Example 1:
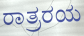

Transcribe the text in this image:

ರಾತ್ರರಯ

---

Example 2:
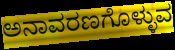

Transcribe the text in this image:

ಅನಾವರಣಗೊಳ್ಳುವ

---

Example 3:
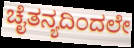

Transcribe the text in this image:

ಚೈತನ್ಯದಿಂದಲೇ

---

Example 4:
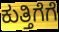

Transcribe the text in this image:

ಕುತ್ತಿಗೆಗೆ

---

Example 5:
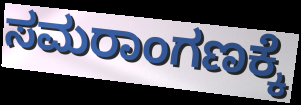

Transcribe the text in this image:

ಸಮರಾಂಗಣಕ್ಕೆ